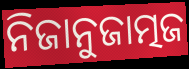
ନିଜାନୁଜାତ୍ମଜ